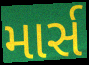
માર્સ